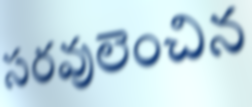
సరవులెంచిన